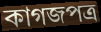
কাগজপত্র